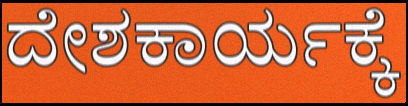
ದೇಶಕಾರ್ಯಕ್ಕೆ